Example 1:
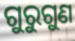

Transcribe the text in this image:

ଗୁରୁଗୁଣ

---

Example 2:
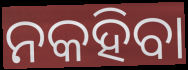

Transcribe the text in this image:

ନକହିବା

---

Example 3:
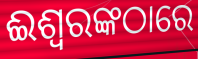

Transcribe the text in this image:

ଈଶ୍ୱରଙ୍କଠାରେ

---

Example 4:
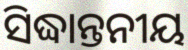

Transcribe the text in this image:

ସିଦ୍ଧାନ୍ତନୀୟ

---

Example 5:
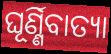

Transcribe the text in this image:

ଘୂର୍ଣ୍ଣିବାତ୍ୟା